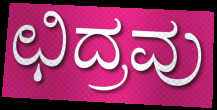
ಛಿದ್ರವು